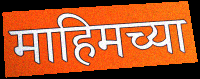
माहिमच्या